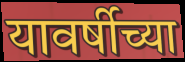
यावर्षीच्या